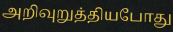
அறிவுறுத்தியபோது